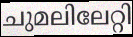
ചുമലിലേറ്റി